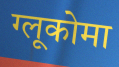
ग्‍लूकोमा